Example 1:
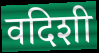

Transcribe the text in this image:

वदिशी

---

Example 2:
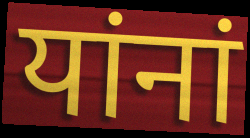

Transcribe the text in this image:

यांनां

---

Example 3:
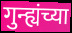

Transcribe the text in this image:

गुन्ह्यंच्या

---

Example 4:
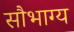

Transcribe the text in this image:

सौभाग्य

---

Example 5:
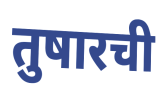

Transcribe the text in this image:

तुषारची